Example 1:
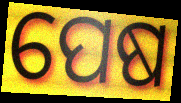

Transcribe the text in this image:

ପେଷ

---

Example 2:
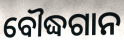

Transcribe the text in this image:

ବୌଦ୍ଧଗାନ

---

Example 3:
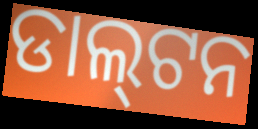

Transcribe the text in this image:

ଡାଲ୍‌ଟନ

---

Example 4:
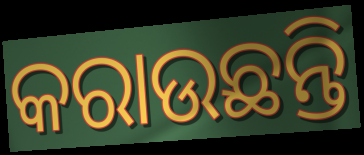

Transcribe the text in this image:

କରାଉଛନ୍ତି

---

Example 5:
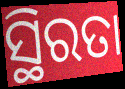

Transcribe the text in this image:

ସ୍ଥିରତା